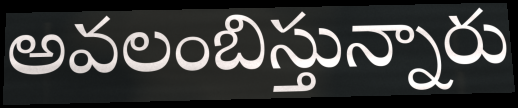
అవలంబిస్తున్నారు